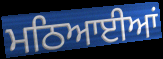
ਮਠਿਆਈਆਂ